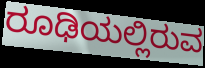
ರೂಢಿಯಲ್ಲಿರುವ